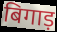
बिगाड़